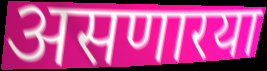
असणारया